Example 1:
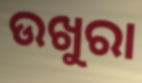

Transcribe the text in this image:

ଉଖୁରା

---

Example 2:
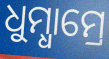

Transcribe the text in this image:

ଧୁମ୍ଧାମ୍ରେ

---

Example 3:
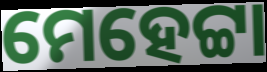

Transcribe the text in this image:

ମେହେଟ୍ଟା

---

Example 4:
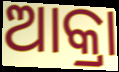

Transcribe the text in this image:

ଆକ୍ରା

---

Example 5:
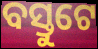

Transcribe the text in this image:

ବସ୍ତୁଟେ